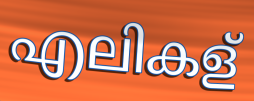
എലികള്